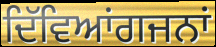
ਦਿੱਵਿਆਂਗਜਨਾਂ